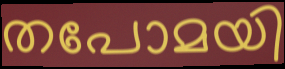
തപോമയി